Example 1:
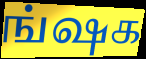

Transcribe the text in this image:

ங்ஷக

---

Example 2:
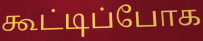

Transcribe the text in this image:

கூட்டிப்போக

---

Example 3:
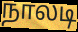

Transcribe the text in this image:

நாலடி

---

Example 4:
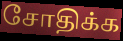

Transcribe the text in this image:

சோதிக்க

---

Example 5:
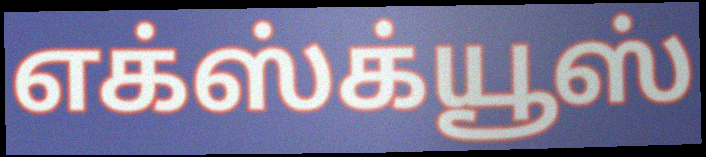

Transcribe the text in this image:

எக்ஸ்க்யூஸ்